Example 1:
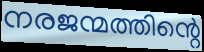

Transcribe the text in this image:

നരജന്മത്തിന്റെ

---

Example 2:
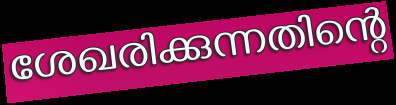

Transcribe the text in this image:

ശേഖരിക്കുന്നതിന്റെ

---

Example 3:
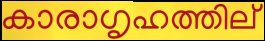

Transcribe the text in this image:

കാരാഗൃഹത്തില്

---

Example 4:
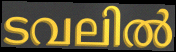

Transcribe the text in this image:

ടവലിൽ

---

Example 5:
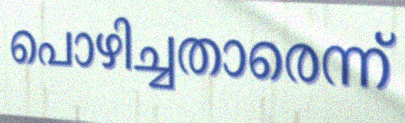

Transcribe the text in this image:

പൊഴിച്ചതാരെന്ന്